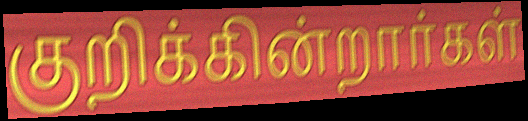
குறிக்கின்றார்கள்